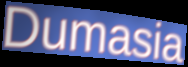
Dumasia